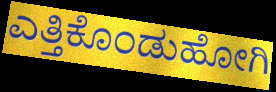
ಎತ್ತಿಕೊಂಡುಹೋಗಿ